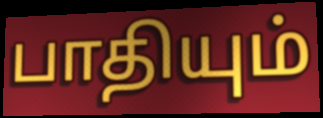
பாதியும்